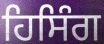
ਹਿਸਿੰਗ